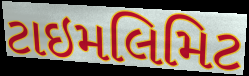
ટાઇમલિમિટ